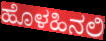
ಹೊಳಹಿನಲಿ